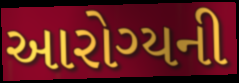
આરોગ્યની